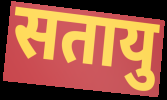
सतायु